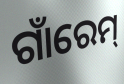
ଗାଁରେମ୍